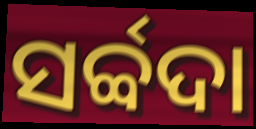
ସର୍ବ୍ବଦା